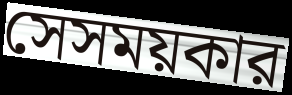
সেসময়কার